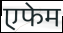
एफेम